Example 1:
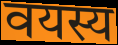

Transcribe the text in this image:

वयस्य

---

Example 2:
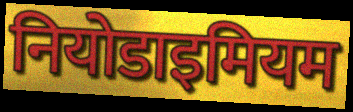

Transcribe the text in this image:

नियोडाइमियम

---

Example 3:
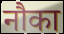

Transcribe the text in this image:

नौका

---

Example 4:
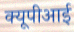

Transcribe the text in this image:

क्यूपीआई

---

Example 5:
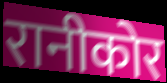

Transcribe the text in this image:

रानीकोर